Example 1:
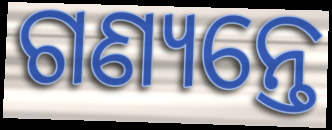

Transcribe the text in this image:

ଗଣ୍ୟନ୍ତେ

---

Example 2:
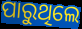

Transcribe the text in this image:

ପାରୁଥିଲେ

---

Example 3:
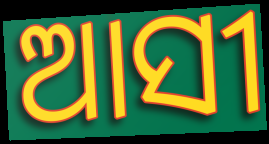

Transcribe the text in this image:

ଆସୀ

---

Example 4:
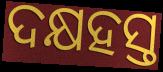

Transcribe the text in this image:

ଦକ୍ଷହସ୍ତ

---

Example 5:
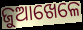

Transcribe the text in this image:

ଜୁଆଖେଳେ